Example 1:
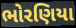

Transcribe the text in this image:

ભોરણિયા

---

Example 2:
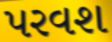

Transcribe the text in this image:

પરવશ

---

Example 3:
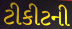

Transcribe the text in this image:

ટીકીટની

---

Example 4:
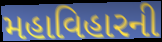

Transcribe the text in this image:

મહાવિહારની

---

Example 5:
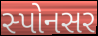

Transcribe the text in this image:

સ્પોનસર